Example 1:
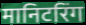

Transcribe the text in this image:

मानिटरिंग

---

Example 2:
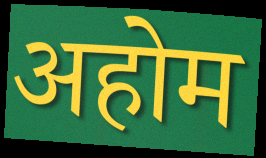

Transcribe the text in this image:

अहोम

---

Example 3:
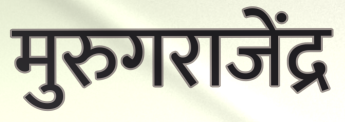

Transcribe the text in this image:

मुरुगराजेंद्र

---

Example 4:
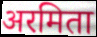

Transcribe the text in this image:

अरमिता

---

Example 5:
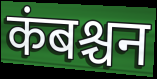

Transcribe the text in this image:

कंबश्चन